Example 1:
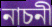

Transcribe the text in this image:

নাচনী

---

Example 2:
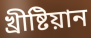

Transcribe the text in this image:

খ্ৰীষ্টিয়ান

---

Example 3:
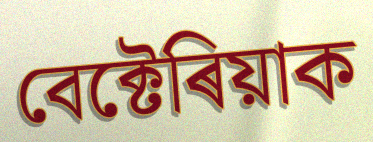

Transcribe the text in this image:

বেক্টেৰিয়াক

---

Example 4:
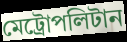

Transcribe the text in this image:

মেট্ৰোপলিটান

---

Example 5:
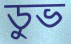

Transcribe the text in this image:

ডুভ